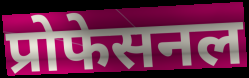
प्रोफेसनल